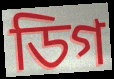
ডিগ